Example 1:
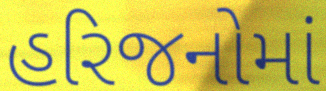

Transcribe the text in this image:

હરિજનોમાં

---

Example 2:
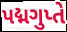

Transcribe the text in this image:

પદ્મગુપ્તે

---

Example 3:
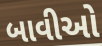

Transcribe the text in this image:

બાવીઓ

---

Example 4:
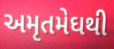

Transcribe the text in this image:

અમૃતમેઘથી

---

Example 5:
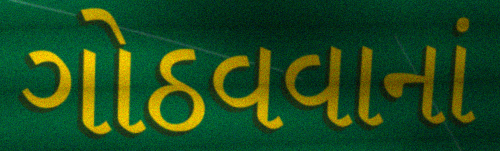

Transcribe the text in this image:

ગોઠવવાનાં